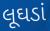
લૂઘડાં